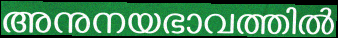
അനുനയഭാവത്തിൽ